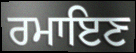
ਰਮਾਇਣ